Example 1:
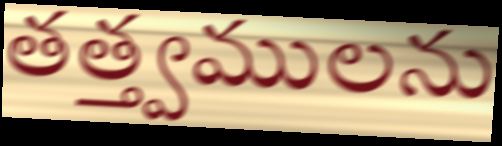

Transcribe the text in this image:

తత్త్వములను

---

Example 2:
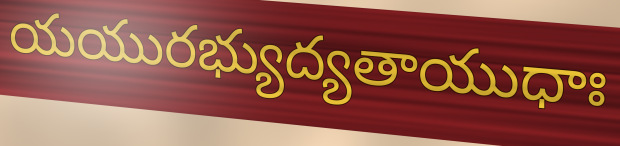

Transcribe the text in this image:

యయురభ్యుద్యతాయుధాః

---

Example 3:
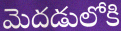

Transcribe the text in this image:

మెదడులోకి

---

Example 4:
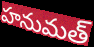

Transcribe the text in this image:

హనుమత్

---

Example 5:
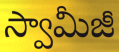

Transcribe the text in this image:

స్వామీజీ